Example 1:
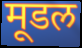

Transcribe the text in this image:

मूडल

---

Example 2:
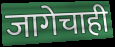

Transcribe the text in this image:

जागेचाही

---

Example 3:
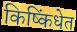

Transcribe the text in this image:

किष्किंधेत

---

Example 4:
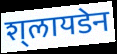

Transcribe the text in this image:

श्लायडेन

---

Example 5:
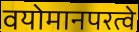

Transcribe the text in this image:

वयोमानपरत्वे